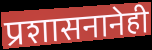
प्रशासनानेही